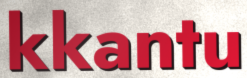
kkantu